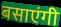
बसाएंगी